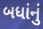
બધાંનું